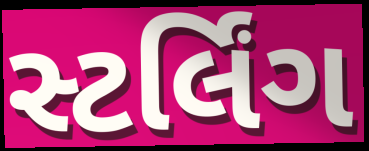
સ્ટર્લિંગ